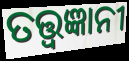
ତତ୍ତ୍ଵଜ୍ଞାନୀ